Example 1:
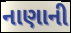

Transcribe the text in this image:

નાણાની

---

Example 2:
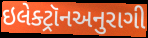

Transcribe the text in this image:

ઇલેક્ટ્રૉનઅનુરાગી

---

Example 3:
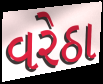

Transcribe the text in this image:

વરેઠા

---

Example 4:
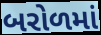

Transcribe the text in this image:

બરોળમાં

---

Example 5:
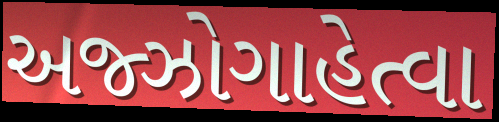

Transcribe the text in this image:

અજ્ઝોગાહેત્વા